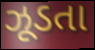
ઝૂડતા